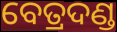
ବେତ୍ରଦଣ୍ଡ